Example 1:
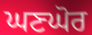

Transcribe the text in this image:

ਘਣਘੋਰ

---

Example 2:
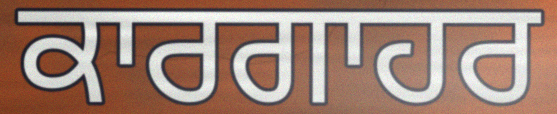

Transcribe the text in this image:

ਕਾਰਗਾਹਰ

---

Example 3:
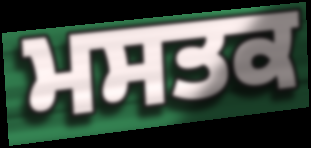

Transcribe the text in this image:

ਮਸਤਕ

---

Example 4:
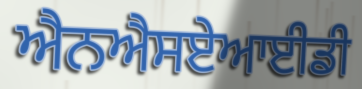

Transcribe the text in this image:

ਐਨਐਸਏਆਈਡੀ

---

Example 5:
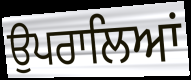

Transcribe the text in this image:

ਉਪਰਾਲਿਆਂ